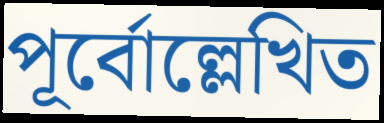
পূর্বোল্লেখিত